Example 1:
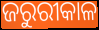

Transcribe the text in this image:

ଜରୁରୀକାଳ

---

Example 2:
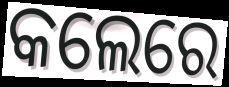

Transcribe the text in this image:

କଲେରେ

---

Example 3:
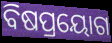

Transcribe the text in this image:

ବିଷପ୍ରୟୋଗ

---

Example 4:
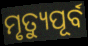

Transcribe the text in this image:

ମୃତ୍ୟୁପୂର୍ବ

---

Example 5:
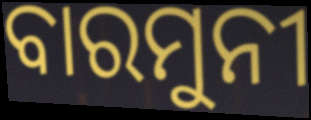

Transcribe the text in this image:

ବାରମୁନୀ